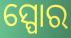
ସ୍ପୋର